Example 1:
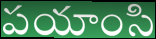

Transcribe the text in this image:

పయాంసి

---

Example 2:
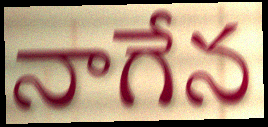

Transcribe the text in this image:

నాగేన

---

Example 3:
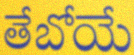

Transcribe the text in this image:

తేబోయే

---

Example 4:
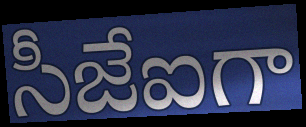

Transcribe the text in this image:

సీజేఐగా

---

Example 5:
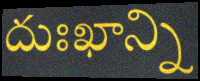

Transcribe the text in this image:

దుఃఖాన్ని